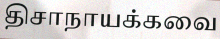
திசாநாயக்கவை